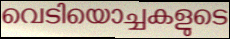
വെടിയൊച്ചകളുടെ